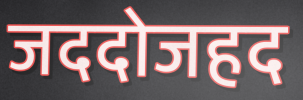
जददोजहद